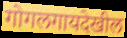
गोगलगायदेखील